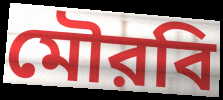
মৌরবি